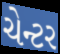
ચેન્ટર